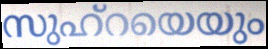
സുഹ്റയെയും